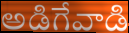
అడిగేవాడి